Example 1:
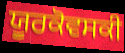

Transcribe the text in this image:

ਯੂਰਕੋਵਸਕੀ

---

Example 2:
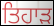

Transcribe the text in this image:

ਤਿਹਾੜ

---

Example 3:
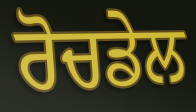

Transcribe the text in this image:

ਰੋਚਡੇਲ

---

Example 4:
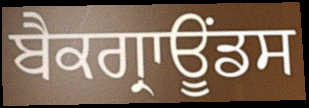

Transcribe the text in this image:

ਬੈਕਗ੍ਰਾਊਂਡਸ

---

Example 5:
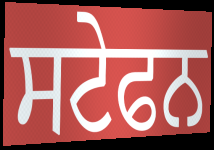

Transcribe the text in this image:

ਸਟੇਫਨ